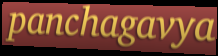
panchagavya